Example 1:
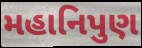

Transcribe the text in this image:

મહાનિપુણ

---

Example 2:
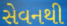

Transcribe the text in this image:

સેવનથી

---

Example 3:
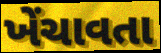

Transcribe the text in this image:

ખેંચાવતા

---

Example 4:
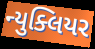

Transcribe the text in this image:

ન્યુક્લિયર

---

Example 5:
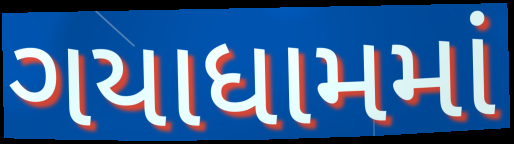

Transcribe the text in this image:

ગયાધામમાં